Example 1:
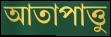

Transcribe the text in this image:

আতাপাত্তু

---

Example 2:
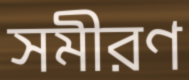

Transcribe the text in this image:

সমীরণ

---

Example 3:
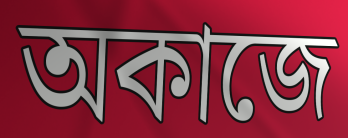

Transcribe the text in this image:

অকাজে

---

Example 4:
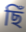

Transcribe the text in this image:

ছিঁ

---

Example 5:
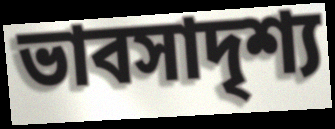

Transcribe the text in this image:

ভাবসাদৃশ্য